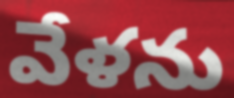
వేళను